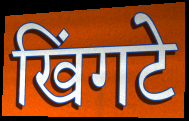
खिंगटे